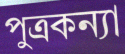
পুত্রকন্যা